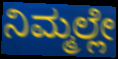
ನಿಮ್ಮಲ್ಲೇ